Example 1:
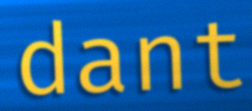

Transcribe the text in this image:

dant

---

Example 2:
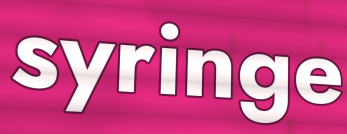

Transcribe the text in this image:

syringe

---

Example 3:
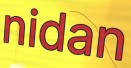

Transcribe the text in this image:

nidan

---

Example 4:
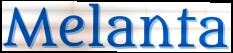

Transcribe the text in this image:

Melanta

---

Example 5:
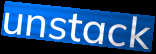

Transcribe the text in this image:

unstack